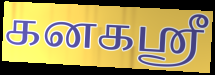
கனகஸ்ரீ